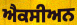
ਐਕਸੀਅਨ